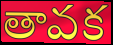
తావక